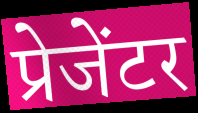
प्रेजेंटर